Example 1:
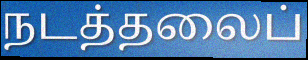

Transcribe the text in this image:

நடத்தலைப்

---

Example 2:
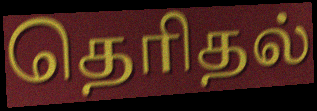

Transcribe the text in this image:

தெரிதல்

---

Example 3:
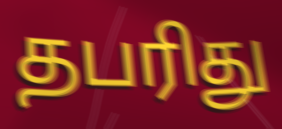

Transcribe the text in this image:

தபரிது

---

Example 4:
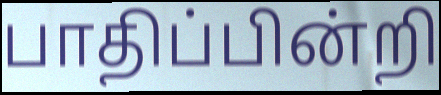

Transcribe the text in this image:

பாதிப்பின்றி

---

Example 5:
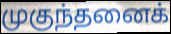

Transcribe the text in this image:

முகுந்தனைக்